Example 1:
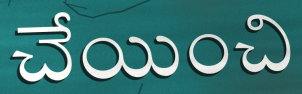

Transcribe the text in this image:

చేయించి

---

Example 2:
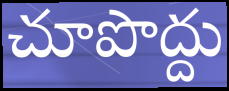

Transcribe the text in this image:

చూపొద్దు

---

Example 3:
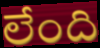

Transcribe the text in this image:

లేంది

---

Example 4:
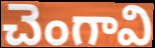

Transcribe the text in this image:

చెంగావి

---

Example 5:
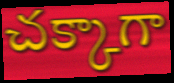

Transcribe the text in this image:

చక్కాగా